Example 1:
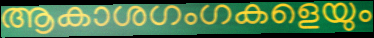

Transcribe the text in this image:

ആകാശഗംഗകളെയും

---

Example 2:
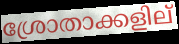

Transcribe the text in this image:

ശ്രോതാക്കളില്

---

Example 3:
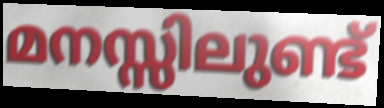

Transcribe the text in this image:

മനസ്സിലുണ്ട്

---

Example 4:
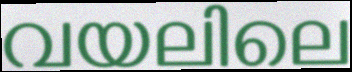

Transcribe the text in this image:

വയലിലെ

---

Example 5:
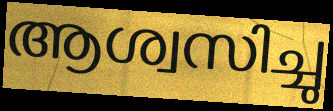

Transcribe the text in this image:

ആശ്വസിച്ചു